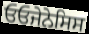
ਓਓਜੇਨੇਸਿਸ